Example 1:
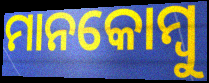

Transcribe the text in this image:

ମାନକୋମ୍ବୁ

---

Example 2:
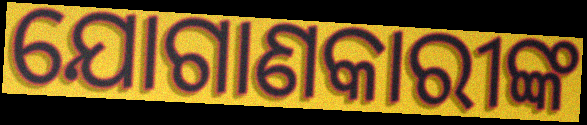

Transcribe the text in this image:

ଯୋଗାଣକାରୀଙ୍କ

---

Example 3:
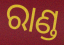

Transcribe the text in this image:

ରାଣ୍ଡ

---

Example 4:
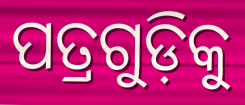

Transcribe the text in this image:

ପତ୍ରଗୁଡ଼ିକୁ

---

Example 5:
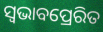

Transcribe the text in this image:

ସ୍ୱଭାବପ୍ରେରିତ